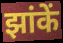
झांकें